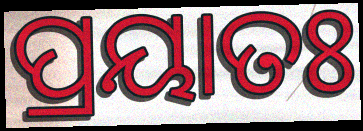
ପ୍ରୟାତଃ